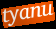
tyanu